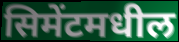
सिमेंटमधील